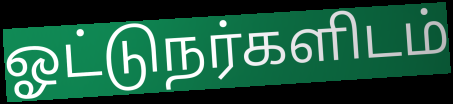
ஓட்டுநர்களிடம்